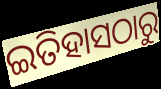
ଇତିହାସଠାରୁ